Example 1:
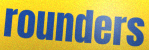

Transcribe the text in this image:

rounders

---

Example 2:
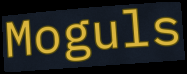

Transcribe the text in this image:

Moguls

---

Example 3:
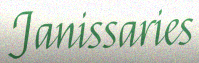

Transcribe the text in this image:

Janissaries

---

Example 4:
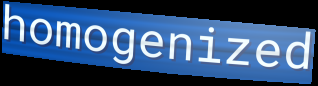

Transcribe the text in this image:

homogenized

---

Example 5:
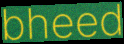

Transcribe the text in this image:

bheed